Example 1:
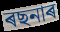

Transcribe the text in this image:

ৰছনাৰ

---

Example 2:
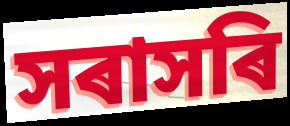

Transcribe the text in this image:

সৰাসৰি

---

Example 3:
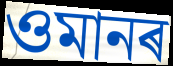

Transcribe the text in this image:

ওমানৰ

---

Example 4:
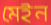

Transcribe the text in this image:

মেইন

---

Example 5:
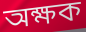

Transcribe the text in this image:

অক্ষক